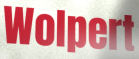
Wolpert